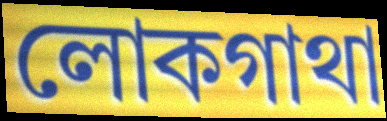
লোকগাথা